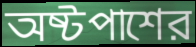
অষ্টপাশের